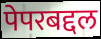
पेपरबद्दल